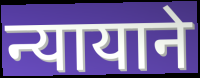
न्यायाने